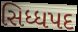
સિધ્ધપદ